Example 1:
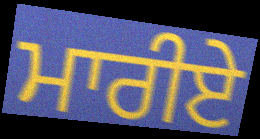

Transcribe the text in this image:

ਮਾਰੀਏ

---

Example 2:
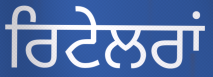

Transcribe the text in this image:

ਰਿਟੇਲਰਾਂ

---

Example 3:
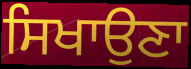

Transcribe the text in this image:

ਸਿਖਾਉਣਾ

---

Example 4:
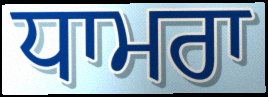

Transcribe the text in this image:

ਧਾਮਰਾ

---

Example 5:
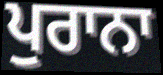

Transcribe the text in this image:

ਪੁਰਾਨਾ